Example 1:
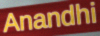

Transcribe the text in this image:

Anandhi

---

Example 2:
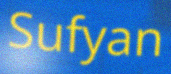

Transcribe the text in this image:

Sufyan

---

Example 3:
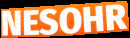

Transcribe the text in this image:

NESOHR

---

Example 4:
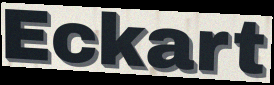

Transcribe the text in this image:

Eckart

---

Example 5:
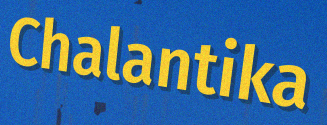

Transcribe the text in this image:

Chalantika